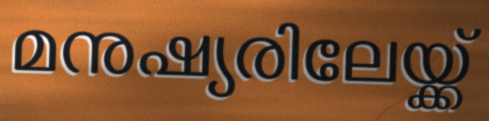
മനുഷ്യരിലേയ്ക്ക്